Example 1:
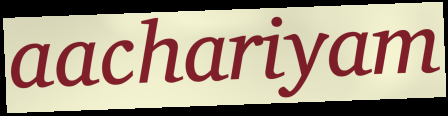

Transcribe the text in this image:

aachariyam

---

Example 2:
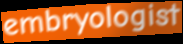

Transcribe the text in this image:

embryologist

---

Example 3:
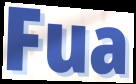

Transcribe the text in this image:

Fua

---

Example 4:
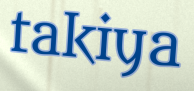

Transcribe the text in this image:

takiya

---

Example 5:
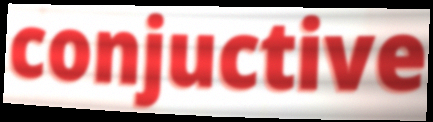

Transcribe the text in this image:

conjuctive